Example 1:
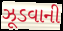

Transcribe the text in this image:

ઝૂડવાની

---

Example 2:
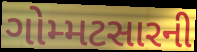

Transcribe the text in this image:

ગોમ્મટસારની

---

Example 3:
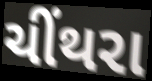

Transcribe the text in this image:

ચીંથરા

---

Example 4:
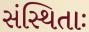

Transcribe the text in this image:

સંસ્થિતાઃ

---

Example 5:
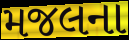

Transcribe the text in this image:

મજલના